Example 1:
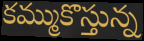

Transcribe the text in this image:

కమ్ముకొస్తున్న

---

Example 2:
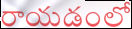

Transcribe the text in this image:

రాయడంలో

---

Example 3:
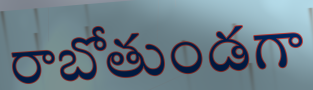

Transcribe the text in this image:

రాబోతుండగా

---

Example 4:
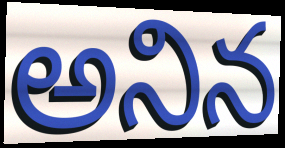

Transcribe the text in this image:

అనిన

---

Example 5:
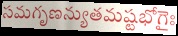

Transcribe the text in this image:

సమగృణన్యుతమష్టభోగైః